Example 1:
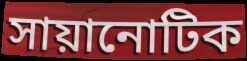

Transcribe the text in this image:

সায়ানোটিক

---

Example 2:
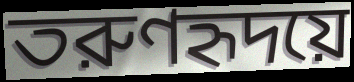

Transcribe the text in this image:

তরুণহৃদয়ে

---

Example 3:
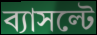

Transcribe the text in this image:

ব্যাসল্টে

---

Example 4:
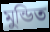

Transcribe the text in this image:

মুন্ডিত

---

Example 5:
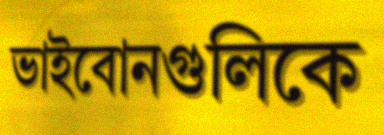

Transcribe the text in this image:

ভাইবোনগুলিকে